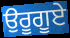
ਉਰੂਗੂਏ